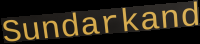
Sundarkand